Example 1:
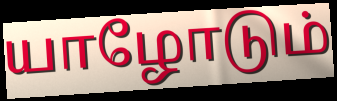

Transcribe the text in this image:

யாழோடும்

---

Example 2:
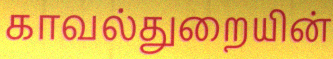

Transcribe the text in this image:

காவல்துறையின்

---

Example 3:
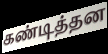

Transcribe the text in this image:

கண்டித்தன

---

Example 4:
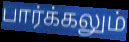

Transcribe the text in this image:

பார்க்கலும்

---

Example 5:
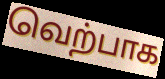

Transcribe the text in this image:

வெற்பாக